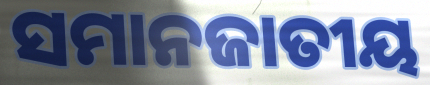
ସମାନଜାତୀୟ